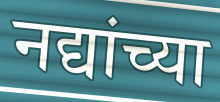
नद्यांच्या